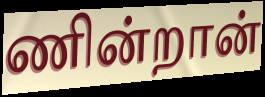
ணின்றான்